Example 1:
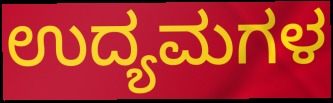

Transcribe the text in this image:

ಉದ್ಯಮಗಳ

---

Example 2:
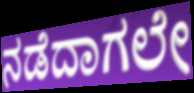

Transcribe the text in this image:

ನಡೆದಾಗಲೇ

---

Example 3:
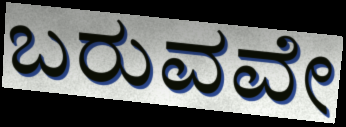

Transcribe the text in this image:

ಬರುವವೇ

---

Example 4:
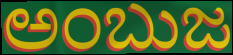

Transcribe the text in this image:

ಅಂಬುಜ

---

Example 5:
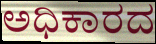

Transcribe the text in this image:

ಅಧಿಕಾರದ